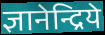
ज्ञानेन्द्रिये